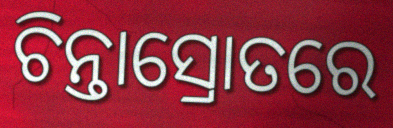
ଚିନ୍ତାସ୍ରୋତରେ